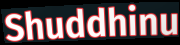
Shuddhinu